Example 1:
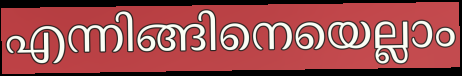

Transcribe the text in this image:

എന്നിങ്ങിനെയെല്ലാം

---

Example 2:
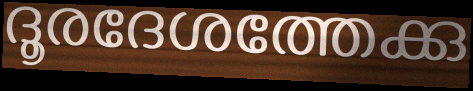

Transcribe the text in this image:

ദൂരദേശത്തേക്കു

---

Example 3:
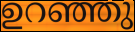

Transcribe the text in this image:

ഉറഞ്ഞു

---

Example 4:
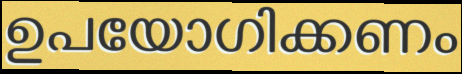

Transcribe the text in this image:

ഉപയോഗിക്കണം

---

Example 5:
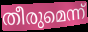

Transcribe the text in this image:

തീരുമെന്ന്